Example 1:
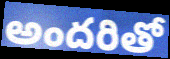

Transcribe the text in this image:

అందరితో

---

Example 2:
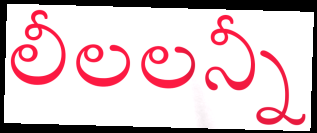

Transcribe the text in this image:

లీలలన్నీ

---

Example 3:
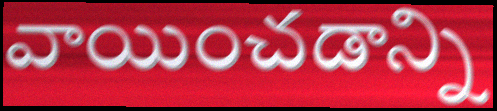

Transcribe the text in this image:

వాయించడాన్ని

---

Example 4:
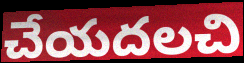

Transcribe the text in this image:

చేయదలచి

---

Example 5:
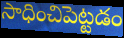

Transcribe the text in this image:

సాధించిపెట్టడం